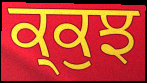
ਕ੍ਕੁਝ